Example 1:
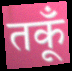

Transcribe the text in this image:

तकूँ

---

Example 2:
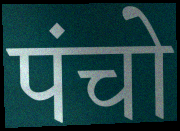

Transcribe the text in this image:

पंचो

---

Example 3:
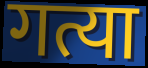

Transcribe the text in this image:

गत्या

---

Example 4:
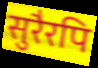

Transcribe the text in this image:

सुरैरपि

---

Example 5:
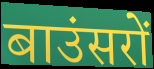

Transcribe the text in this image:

बाउंसरों